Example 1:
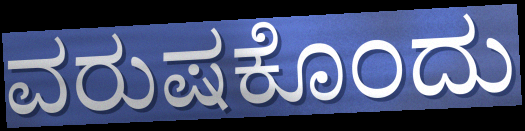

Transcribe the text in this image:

ವರುಷಕೊಂದು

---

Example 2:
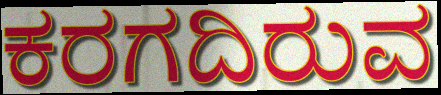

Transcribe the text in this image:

ಕರಗದಿರುವ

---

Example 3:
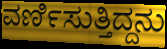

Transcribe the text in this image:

ವರ್ಣಿಸುತ್ತಿದ್ದನು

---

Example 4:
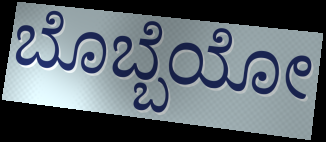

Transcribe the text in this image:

ಬೊಬ್ಬೆಯೋ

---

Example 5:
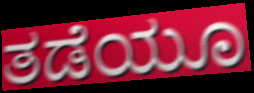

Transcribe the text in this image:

ತಡೆಯೂ